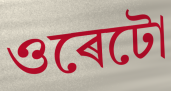
ওৰেটো